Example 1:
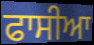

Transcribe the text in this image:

ਫਾਸੀਆ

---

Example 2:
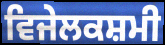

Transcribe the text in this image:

ਵਿਜੇਲਕਸ਼ਮੀ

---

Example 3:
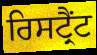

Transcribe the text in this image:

ਰਿਸਟ੍ਰੈਂਟ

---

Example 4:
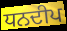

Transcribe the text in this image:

ਧਨਦੀਪ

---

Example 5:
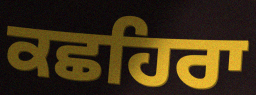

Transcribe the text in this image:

ਕਛਹਿਰਾ